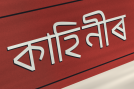
কাহিনীৰ